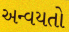
અન્વયતો